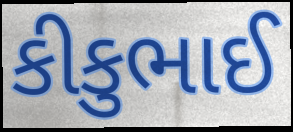
કીકુભાઈ